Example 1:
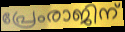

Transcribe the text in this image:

പ്രേംരാജിന്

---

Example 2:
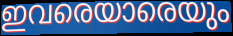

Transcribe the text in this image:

ഇവരെയാരെയും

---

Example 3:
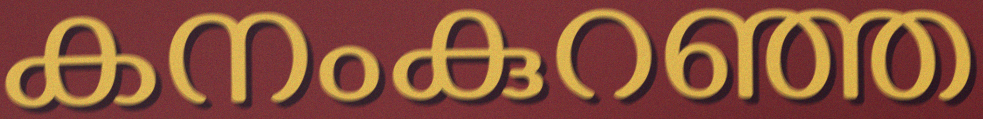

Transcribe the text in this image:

കനംകുറഞ്ഞ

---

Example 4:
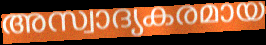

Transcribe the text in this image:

അസ്വാദ്യകരമായ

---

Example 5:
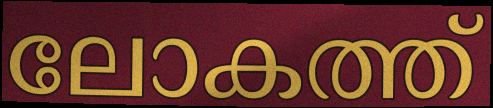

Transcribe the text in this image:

ലോകത്ത്